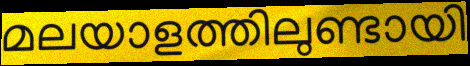
മലയാളത്തിലുണ്ടായി